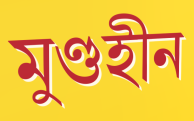
মুণ্ডহীন